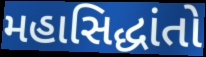
મહાસિદ્ધાંતો